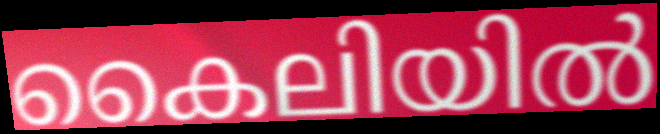
കൈലിയിൽ